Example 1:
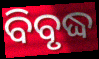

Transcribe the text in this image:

ବିବୃଦ୍ଧ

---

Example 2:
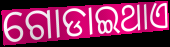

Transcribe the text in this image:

ଗୋଡାଇଥାଏ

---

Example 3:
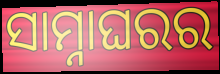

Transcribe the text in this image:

ସାମ୍ନାଘରର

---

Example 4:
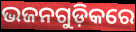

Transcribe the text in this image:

ଭଜନଗୁଡ଼ିକରେ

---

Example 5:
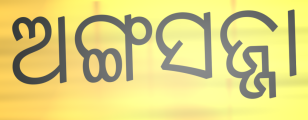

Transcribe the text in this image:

ଅଙ୍ଗସଜ୍ଜା